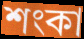
শংকা